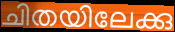
ചിതയിലേക്കു